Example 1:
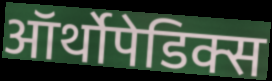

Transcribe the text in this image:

ऑर्थोपेडिक्स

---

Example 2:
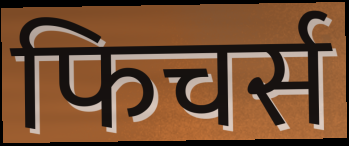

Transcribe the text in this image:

फिचर्स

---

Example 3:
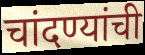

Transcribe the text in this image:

चांदण्यांची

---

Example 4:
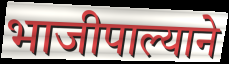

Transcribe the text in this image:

भाजीपाल्याने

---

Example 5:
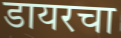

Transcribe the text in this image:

डायरचा